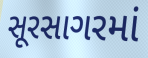
સૂરસાગરમાં